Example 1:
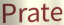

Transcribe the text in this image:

Prate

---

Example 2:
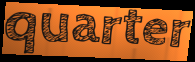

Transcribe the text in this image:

quarter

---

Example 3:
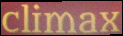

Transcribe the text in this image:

climax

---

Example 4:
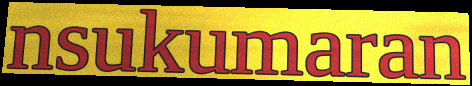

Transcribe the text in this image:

nsukumaran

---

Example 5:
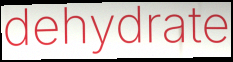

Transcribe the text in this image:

dehydrate